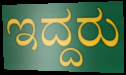
ಇದ್ದರು